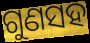
ଗୁଣସହ